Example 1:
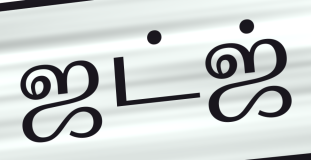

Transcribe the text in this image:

ஜட்ஜ்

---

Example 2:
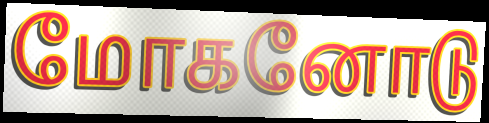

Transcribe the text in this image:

மோகனோடு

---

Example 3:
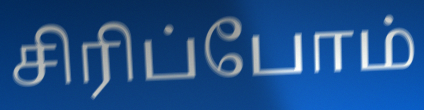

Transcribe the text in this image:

சிரிப்போம்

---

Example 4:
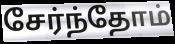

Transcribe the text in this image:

சேர்ந்தோம்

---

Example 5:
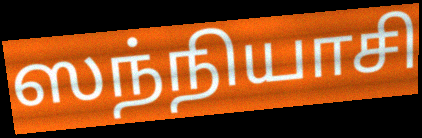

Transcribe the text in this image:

ஸந்நியாசி